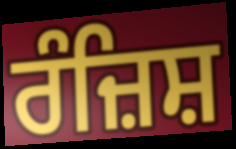
ਰੰਜ਼ਿਸ਼